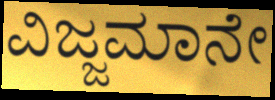
ವಿಜ್ಜಮಾನೇ